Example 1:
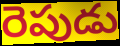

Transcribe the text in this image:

రెపుడు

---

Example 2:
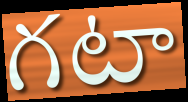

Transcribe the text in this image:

గటా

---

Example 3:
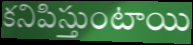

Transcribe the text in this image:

కనిపిస్తుంటాయి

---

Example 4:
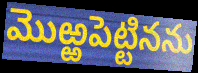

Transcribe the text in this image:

మొఱ్ఱపెట్టినను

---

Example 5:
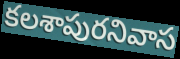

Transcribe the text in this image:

కలశాపురనివాస